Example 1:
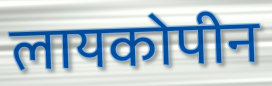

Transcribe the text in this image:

लायकोपीन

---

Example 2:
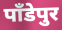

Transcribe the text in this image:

पाँडेपुर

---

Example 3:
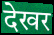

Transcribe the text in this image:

देखर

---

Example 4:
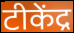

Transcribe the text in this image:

टीकेंद्र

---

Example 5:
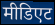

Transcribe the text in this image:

मीडिएट